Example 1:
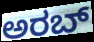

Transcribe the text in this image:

ಅರಬ್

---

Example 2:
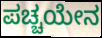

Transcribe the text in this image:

ಪಚ್ಚಯೇನ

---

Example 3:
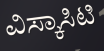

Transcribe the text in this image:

ವಿಸ್ಕಾಸಿಟಿ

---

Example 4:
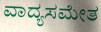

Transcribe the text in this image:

ವಾದ್ಯಸಮೇತ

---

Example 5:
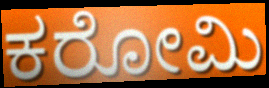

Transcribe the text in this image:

ಕರೋಮಿ